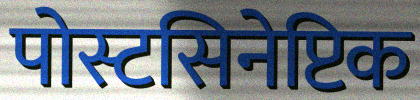
पोस्टसिनेप्टिक